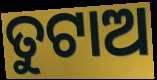
ତୁଟାଅ